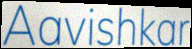
Aavishkar